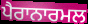
ਪੈਰਾਨਾਰਮਲ